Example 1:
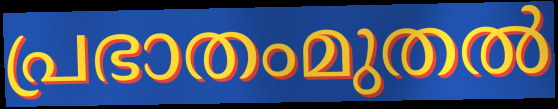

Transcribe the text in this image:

പ്രഭാതംമുതൽ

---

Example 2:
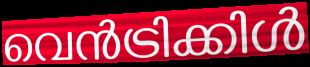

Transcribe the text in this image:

വെൻട്രിക്കിൾ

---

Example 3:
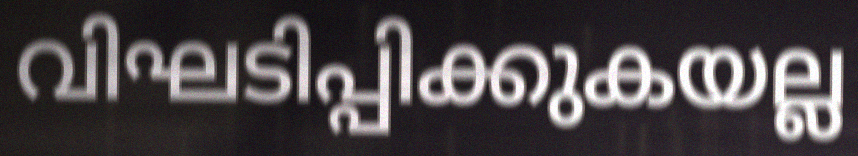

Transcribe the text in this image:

വിഘടിപ്പിക്കുകയല്ല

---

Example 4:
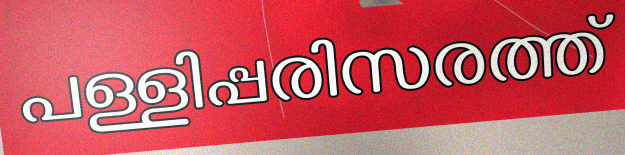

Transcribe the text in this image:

പള്ളിപ്പരിസരത്ത്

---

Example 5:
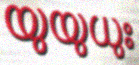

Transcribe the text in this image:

യുയുധുഃ